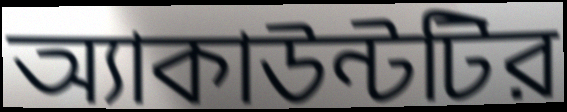
অ্যাকাউন্টটির